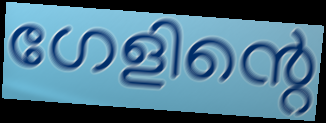
ഗേളിന്റെ